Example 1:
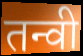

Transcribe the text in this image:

तन्वी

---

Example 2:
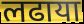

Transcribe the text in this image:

लढाया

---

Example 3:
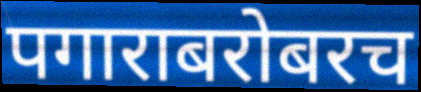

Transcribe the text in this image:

पगाराबरोबरच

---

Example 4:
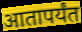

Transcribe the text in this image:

आतापर्यंत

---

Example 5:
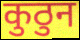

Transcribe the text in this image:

कुठुन